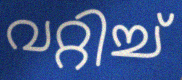
വറ്റിച്ച്